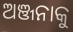
ଅଞ୍ଜନାକୁ